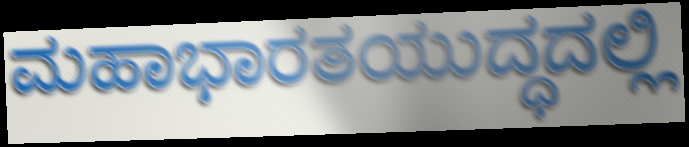
ಮಹಾಭಾರತಯುದ್ಧದಲ್ಲಿ